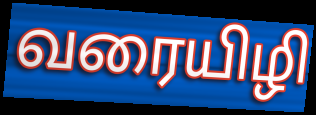
வரையிழி